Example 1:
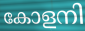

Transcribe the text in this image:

കോളനി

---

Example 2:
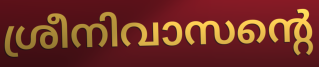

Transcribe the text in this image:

ശ്രീനിവാസന്റെ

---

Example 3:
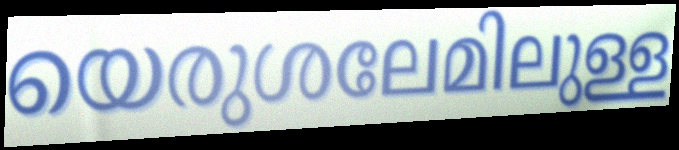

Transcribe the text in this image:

യെരുശലേമിലുള്ള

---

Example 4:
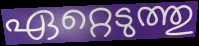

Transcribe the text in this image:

ഏറ്റെടുത്തു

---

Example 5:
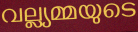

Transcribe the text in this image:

വല്ല്യമ്മയുടെ